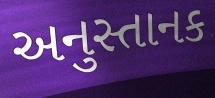
અનુસ્તાનક